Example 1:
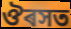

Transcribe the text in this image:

ঔৰসত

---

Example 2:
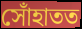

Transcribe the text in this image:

সোঁহাতত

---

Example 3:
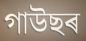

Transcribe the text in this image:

গাউছৰ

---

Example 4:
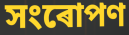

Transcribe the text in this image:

সংৰোপণ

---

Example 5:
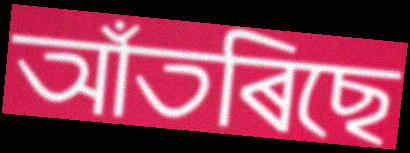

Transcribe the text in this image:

আঁতৰিছে